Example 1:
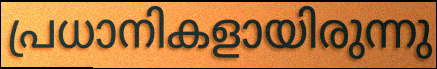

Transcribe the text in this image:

പ്രധാനികളായിരുന്നു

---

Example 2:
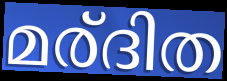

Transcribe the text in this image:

മര്ദിത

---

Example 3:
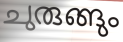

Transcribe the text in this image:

ചുരുങ്ങും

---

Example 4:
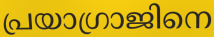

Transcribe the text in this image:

പ്രയാഗ്രാജിനെ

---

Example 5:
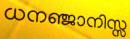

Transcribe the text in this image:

ധനഞ്ജാനിസ്സ